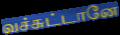
வச்சுட்டானே